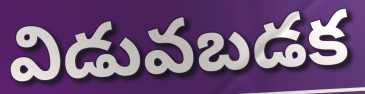
విడువబడక